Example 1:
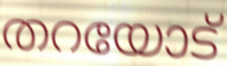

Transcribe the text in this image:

തറയോട്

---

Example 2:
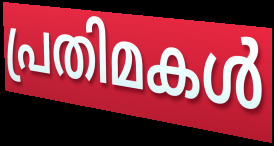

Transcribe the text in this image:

പ്രതിമകൾ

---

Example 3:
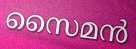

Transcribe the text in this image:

സൈമൻ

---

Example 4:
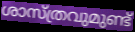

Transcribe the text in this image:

ശാസ്ത്രവുമുണ്ട്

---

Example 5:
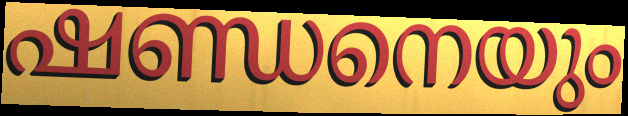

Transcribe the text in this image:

ഷണ്ഡനെയും